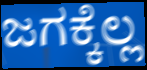
ಜಗಕ್ಕೆಲ್ಲ